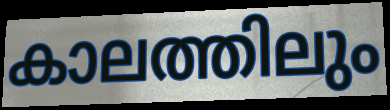
കാലത്തിലും